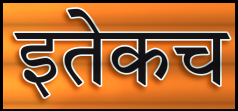
इतेकच